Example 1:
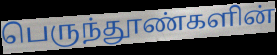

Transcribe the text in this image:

பெருந்தூண்களின்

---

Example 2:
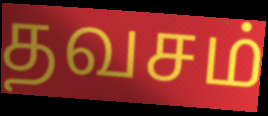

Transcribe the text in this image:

தவசம்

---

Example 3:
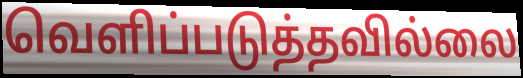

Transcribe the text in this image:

வெளிப்படுத்தவில்லை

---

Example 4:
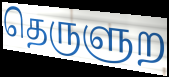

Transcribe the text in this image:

தெருளுற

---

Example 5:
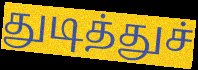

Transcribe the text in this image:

துடித்துச்